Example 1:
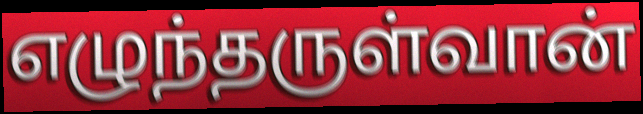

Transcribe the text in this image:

எழுந்தருள்வான்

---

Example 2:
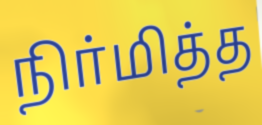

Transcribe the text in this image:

நிர்மித்த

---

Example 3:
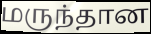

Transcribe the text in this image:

மருந்தான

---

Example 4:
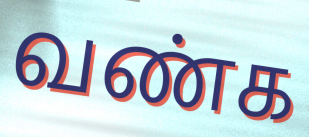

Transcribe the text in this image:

வண்க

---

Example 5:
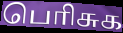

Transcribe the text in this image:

பெரிசுக